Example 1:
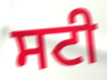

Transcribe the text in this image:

ਸਟੀ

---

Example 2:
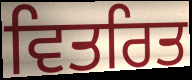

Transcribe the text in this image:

ਵਿਤਰਿਤ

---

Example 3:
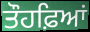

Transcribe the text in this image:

ਤੌਹਫ਼ਿਆਂ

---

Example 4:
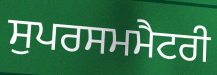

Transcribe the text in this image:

ਸੁਪਰਸਮਮੈਟਰੀ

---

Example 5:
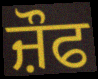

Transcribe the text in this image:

ਜ਼ੌਫ